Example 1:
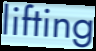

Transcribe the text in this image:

lifting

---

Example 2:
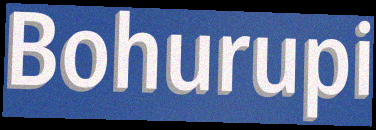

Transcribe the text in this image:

Bohurupi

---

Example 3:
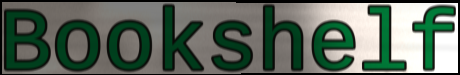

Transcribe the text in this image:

Bookshelf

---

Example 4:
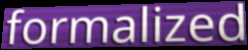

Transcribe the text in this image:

formalized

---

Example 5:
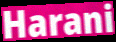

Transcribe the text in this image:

Harani